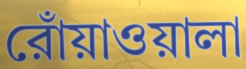
রোঁয়াওয়ালা